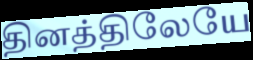
தினத்திலேயே